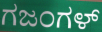
ಗಜಂಗಳ್